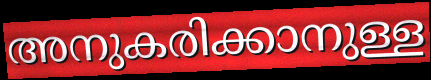
അനുകരിക്കാനുള്ള